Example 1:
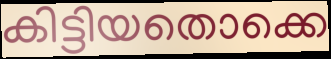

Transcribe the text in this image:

കിട്ടിയതൊക്കെ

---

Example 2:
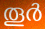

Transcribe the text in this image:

തൂർ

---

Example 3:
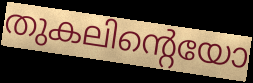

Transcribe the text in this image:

തുകലിന്റെയോ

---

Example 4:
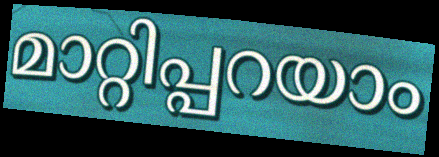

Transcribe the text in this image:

മാറ്റിപ്പറയാം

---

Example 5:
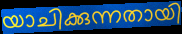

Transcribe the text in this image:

യാചിക്കുന്നതായി